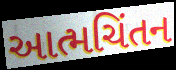
આત્મચિંતન